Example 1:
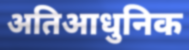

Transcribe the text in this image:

अतिआधुनिक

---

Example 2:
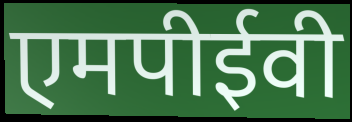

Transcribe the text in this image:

एमपीईवी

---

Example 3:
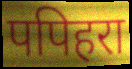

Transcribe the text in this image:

पपिहरा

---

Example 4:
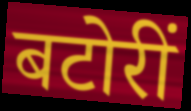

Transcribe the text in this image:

बटोरीं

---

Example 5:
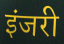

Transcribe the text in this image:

इंजरी